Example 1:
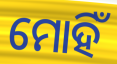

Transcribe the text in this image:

ମୋହିଁ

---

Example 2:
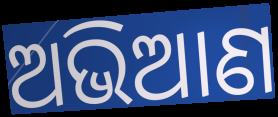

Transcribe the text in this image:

ଅଭିଆଣ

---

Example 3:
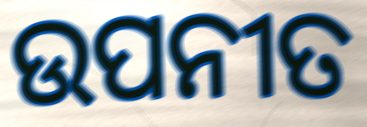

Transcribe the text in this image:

ଉପନୀତ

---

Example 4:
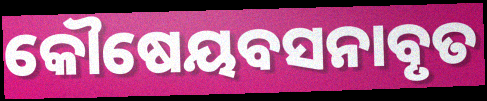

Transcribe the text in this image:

କୌଷେୟବସନାବୃତ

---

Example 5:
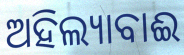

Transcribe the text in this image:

ଅହିଲ୍ୟାବାଈ